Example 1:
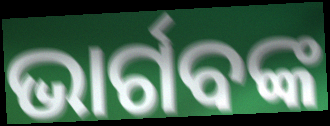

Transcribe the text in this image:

ଭାର୍ଗବଙ୍କ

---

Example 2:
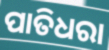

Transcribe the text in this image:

ପାତିଧରା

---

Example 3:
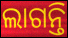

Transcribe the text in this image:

ଲାଗନ୍ତି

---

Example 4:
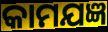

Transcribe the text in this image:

କାମଯଜ୍ଞ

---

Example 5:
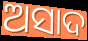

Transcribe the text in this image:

ଅସାଦ